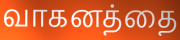
வாகனத்தை